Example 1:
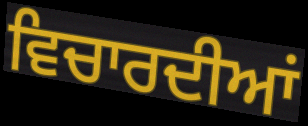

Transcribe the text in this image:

ਵਿਚਾਰਦੀਆਂ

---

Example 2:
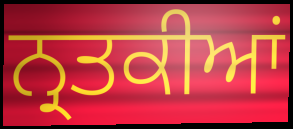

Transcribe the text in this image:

ਨ੍ਰਤਕੀਆਂ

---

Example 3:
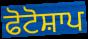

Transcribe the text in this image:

ਫੋਟੋਸ਼ਾਪ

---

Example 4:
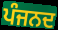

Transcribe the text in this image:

ਪੰਜਨਦ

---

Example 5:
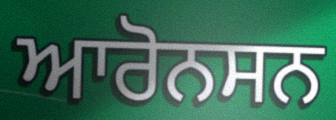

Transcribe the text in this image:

ਆਰੋਨਸਨ